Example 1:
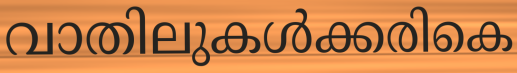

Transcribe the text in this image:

വാതിലുകൾക്കരികെ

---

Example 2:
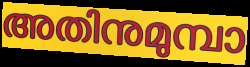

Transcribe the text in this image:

അതിനുമുമ്പാ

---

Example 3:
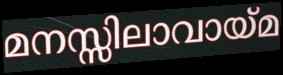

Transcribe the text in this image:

മനസ്സിലാവായ്മ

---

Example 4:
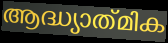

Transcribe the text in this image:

ആദ്ധ്യാത്‌മിക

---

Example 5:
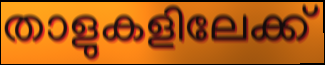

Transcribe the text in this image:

താളുകളിലേക്ക്